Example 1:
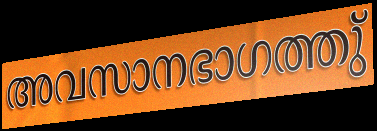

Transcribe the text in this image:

അവസാനഭാഗത്തു്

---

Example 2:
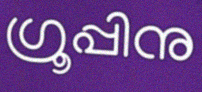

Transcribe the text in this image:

ഗ്രൂപ്പിനു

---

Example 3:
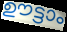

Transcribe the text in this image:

ഊട്ടാം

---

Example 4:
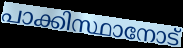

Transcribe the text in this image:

പാക്കിസ്ഥാനോട്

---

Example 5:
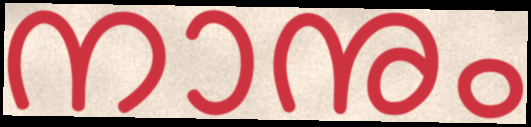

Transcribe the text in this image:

നാനും